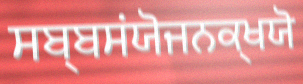
ਸਬ੍ਬਸਂਯੋਜਨਕ੍ਖਯੋ